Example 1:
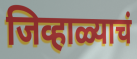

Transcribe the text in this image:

जिव्हाळ्याचं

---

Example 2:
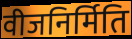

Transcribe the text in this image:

वीजनिर्मिति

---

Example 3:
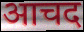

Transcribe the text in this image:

आचद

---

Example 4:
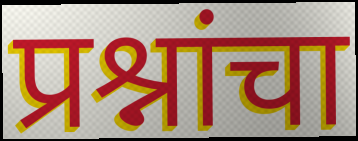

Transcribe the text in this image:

प्रश्नांचा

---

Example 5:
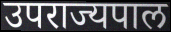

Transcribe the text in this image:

उपराज्यपाल